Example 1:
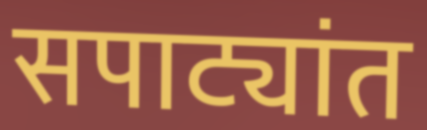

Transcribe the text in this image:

सपाट्यांत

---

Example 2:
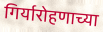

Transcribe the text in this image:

गिर्यारोहणाच्या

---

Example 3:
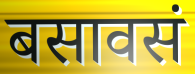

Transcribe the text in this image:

बसावसं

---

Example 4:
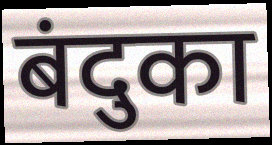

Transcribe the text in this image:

बंदुका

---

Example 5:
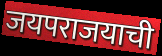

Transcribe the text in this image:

जयपराजयाची